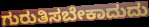
ಗುರುತಿಸಬೇಕಾದುದು